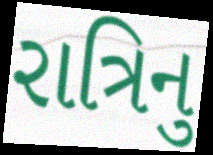
રાત્રિનુ